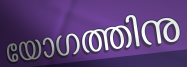
യോഗത്തിനു